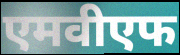
एमवीएफ